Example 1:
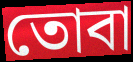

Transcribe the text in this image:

তোবা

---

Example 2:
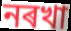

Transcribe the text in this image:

নৰখা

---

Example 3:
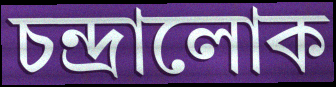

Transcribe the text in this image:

চন্দ্ৰালোক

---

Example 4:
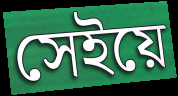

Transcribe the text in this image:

সেইয়ে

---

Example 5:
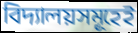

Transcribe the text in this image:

বিদ্যালয়সমূহেই